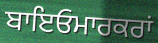
ਬਾਇਓਮਾਰਕਰਾਂ